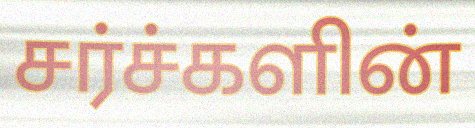
சர்ச்களின்